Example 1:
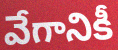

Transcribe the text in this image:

వేగానికీ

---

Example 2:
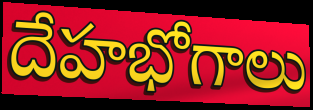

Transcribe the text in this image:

దేహభోగాలు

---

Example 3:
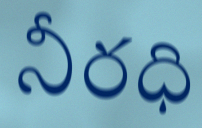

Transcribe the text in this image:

నీరధి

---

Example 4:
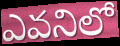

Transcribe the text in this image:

ఎవనిలో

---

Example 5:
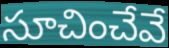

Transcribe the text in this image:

సూచించేవే